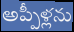
అప్పీళ్లను